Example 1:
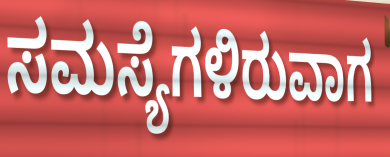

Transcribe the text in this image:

ಸಮಸ್ಯೆಗಳಿರುವಾಗ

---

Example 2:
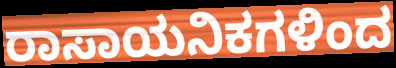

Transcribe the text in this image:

ರಾಸಾಯನಿಕಗಳಿಂದ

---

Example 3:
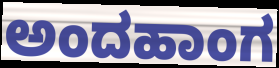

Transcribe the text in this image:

ಅಂದಹಾಂಗ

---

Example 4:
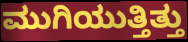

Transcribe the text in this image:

ಮುಗಿಯುತ್ತಿತ್ತು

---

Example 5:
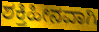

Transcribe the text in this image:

ಶಕ್ತಿಹೀನವಾಗಿ